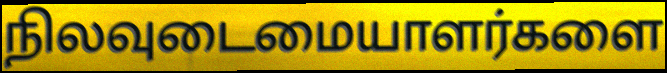
நிலவுடைமையாளர்களை